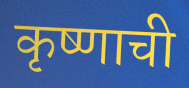
कृष्णाची